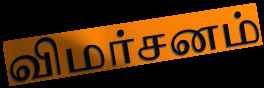
விமர்சனம்